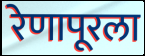
रेणापूरला